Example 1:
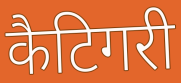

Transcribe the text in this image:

कैटिगरी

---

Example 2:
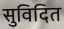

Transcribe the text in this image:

सुविदित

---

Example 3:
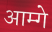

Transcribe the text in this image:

आम्गे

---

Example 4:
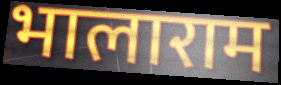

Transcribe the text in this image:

भालाराम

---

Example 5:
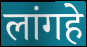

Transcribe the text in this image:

लांगहे